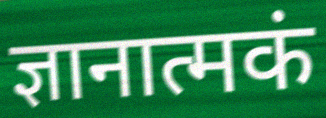
ज्ञानात्मकं